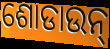
ଶୋଡାଉନ୍